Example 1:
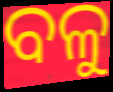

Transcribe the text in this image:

ବଳୁ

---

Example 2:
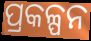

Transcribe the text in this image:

ପ୍ରକଳ୍ପନ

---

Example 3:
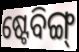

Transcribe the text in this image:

ଷ୍ଟେବିଙ୍ଗ୍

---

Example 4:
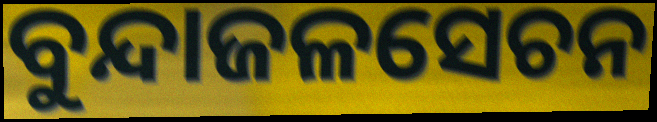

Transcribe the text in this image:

ବୁନ୍ଦାଜଳସେଚନ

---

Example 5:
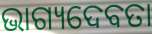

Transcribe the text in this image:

ଭାଗ୍ୟଦେବତା